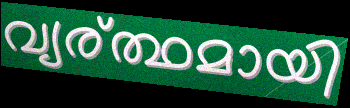
വ്യര്ത്ഥമായി